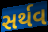
સર્થવ